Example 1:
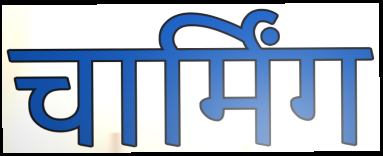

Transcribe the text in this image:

चार्मिंग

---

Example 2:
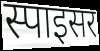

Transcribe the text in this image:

स्पाइसर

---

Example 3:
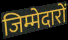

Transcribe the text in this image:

जिम्मेदारों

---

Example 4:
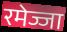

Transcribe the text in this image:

रमेज्जा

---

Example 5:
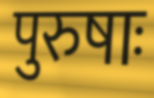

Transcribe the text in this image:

पुरुषाः